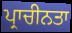
ਪ੍ਰਾਚੀਨਤਾ